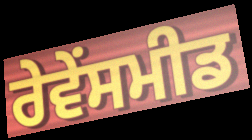
ਰੇਵੇਂਸਮੀਡ